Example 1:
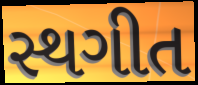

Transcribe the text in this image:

સ્થગીત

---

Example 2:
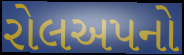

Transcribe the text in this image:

રોલઅપનો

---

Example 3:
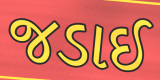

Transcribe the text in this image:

જડાઈ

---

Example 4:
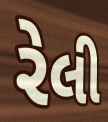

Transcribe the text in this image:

રેલી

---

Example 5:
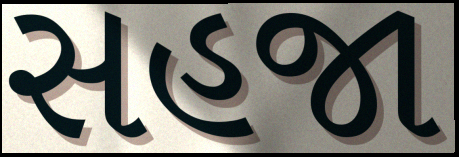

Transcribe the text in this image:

સહજા